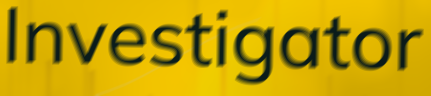
Investigator